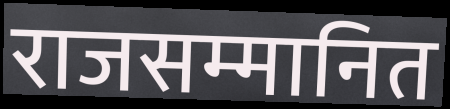
राजसम्मानित